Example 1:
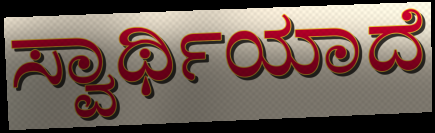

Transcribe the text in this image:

ಸ್ವಾರ್ಥಿಯಾದೆ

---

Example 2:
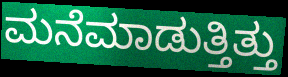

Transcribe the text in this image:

ಮನೆಮಾಡುತ್ತಿತ್ತು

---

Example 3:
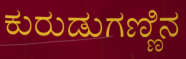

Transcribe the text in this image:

ಕುರುಡುಗಣ್ಣಿನ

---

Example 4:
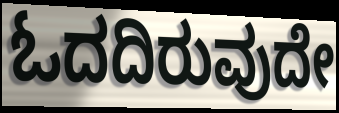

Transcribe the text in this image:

ಓದದಿರುವುದೇ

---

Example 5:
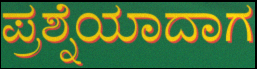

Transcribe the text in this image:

ಪ್ರಶ್ನೆಯಾದಾಗ